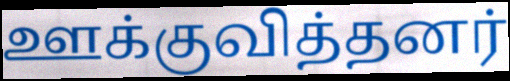
ஊக்குவித்தனர்